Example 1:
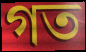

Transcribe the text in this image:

গত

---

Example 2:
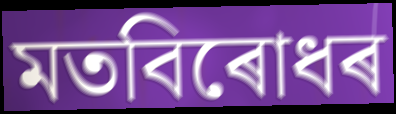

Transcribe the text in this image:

মতবিৰোধৰ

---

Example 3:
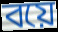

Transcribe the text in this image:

বয়ে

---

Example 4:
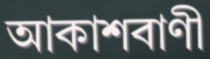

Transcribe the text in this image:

আকাশবাণী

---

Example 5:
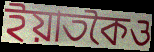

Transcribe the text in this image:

ইয়াতকৈও